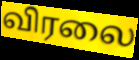
விரலை